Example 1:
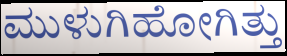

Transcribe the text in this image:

ಮುಳುಗಿಹೋಗಿತ್ತು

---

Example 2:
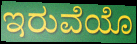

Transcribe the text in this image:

ಇರುವೆಯೊ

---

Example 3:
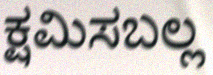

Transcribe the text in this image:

ಕ್ಷಮಿಸಬಲ್ಲ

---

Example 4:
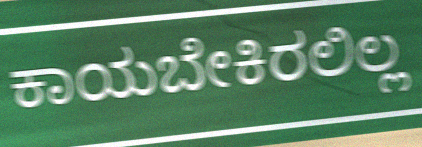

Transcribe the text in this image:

ಕಾಯಬೇಕಿರಲಿಲ್ಲ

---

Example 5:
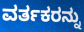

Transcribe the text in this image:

ವರ್ತಕರನ್ನು